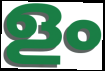
ളം